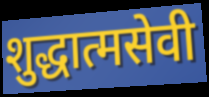
शुद्धात्मसेवी